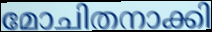
മോചിതനാക്കി